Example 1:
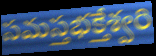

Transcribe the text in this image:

సమస్తభక్తేశ్వరి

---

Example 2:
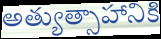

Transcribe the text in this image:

అత్యుత్సాహానికి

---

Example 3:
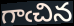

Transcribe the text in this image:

గాఁచిన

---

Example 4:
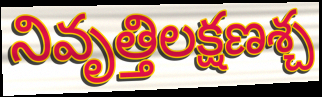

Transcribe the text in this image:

నివృత్తిలక్షణశ్చ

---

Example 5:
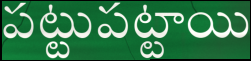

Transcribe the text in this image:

పట్టుపట్టాయి